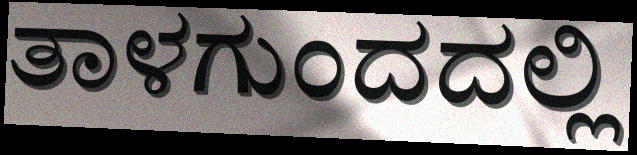
ತಾಳಗುಂದದಲ್ಲಿ